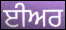
ਈਅਰ